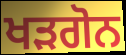
ਖੜਗੋਨ